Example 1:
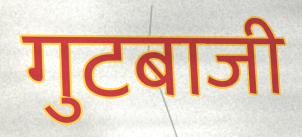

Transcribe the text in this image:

गुटबाजी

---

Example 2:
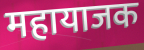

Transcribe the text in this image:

महायाजक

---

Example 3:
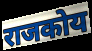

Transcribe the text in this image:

राजकोय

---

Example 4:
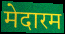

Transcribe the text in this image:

मेदारम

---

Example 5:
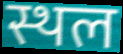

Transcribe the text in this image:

स्थल